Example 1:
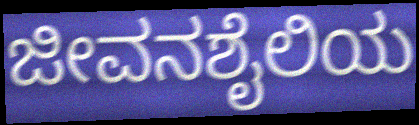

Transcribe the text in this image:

ಜೀವನಶೈಲಿಯ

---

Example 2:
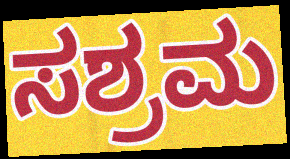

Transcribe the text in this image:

ಸಶ್ರಮ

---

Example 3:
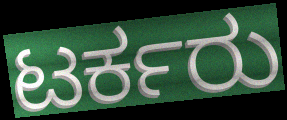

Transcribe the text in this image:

ಟರ್ಕರು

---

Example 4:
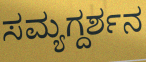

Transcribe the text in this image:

ಸಮ್ಯಗ್ದರ್ಶನ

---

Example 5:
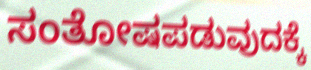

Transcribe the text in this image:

ಸಂತೋಷಪಡುವುದಕ್ಕೆ